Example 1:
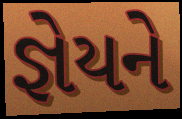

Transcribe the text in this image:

જ્ઞેયને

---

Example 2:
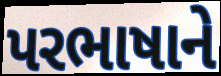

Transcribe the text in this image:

પરભાષાને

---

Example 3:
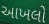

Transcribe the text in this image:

આખલો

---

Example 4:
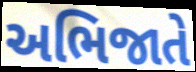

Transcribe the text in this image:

અભિજાતે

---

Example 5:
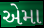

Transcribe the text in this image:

એમા